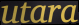
utara